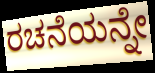
ರಚನೆಯನ್ನೇ